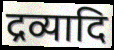
द्रव्यादि